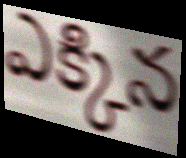
ఎక్కిన